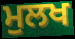
ਮੁਲਖ